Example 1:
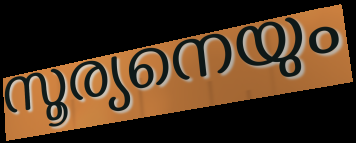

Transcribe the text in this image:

സൂര്യനെയും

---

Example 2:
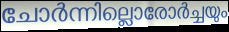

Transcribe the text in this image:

ചോർന്നില്ലൊരോർച്ചയും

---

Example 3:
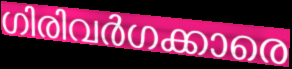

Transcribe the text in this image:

ഗിരിവർഗക്കാരെ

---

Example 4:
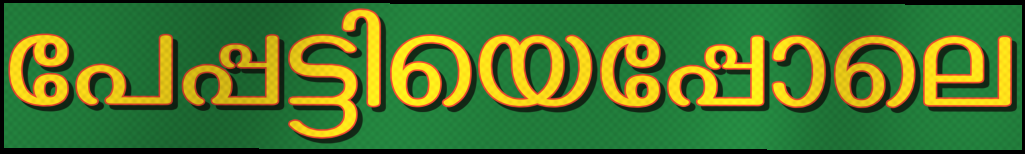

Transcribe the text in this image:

പേപ്പട്ടിയെപ്പോലെ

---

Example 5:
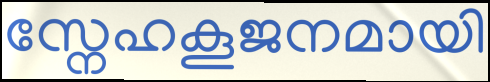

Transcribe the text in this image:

സ്നേഹകൂജനമായി